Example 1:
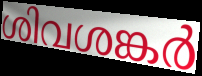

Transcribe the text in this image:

ശിവശങ്കർ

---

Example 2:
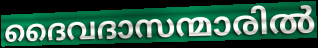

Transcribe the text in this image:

ദൈവദാസന്മാരിൽ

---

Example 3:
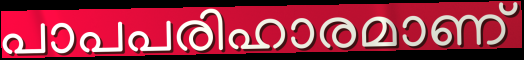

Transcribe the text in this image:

പാപപരിഹാരമാണ്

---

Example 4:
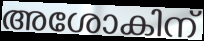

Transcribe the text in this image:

അശോകിന്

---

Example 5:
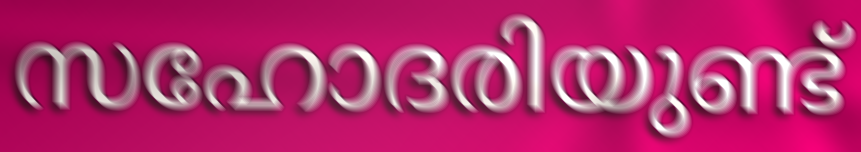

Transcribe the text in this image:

സഹോദരിയുണ്ട്